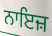
ਨਾਇਜ਼